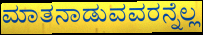
ಮಾತನಾಡುವವರನ್ನೆಲ್ಲ